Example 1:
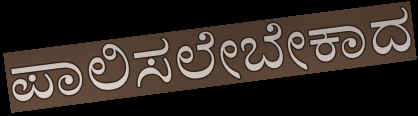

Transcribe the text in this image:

ಪಾಲಿಸಲೇಬೇಕಾದ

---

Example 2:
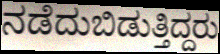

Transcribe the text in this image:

ನಡೆದುಬಿಡುತ್ತಿದ್ದರು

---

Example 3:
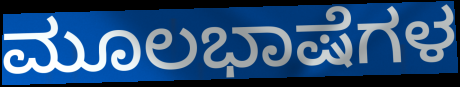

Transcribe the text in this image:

ಮೂಲಭಾಷೆಗಳ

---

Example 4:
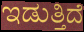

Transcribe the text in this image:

ಇಡುತ್ತಿದೆ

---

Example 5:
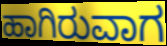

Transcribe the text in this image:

ಹಾಗಿರುವಾಗ